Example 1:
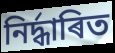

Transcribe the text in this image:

নিৰ্দ্ধাৰিত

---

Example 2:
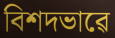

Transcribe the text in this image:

বিশদভাৱে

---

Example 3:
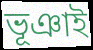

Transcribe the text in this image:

ভূঞাই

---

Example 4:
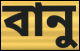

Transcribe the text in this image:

বানু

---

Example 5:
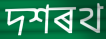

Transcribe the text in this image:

দশৰথ